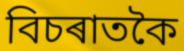
বিচৰাতকৈ